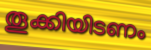
തൂക്കിയിടണം